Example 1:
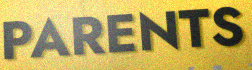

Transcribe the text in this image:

PARENTS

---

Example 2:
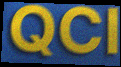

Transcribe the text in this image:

QCI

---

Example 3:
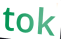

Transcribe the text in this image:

tok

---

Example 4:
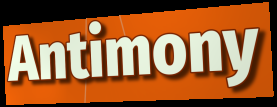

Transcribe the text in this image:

Antimony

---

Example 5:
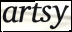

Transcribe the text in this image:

artsy